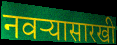
नवऱ्यासारखी